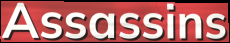
Assassins